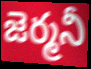
జెర్మనీ